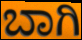
ಬಾಗಿ